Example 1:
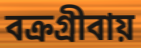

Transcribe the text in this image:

বক্রগ্রীবায়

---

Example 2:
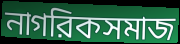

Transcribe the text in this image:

নাগরিকসমাজ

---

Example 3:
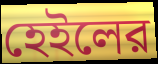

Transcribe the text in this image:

হেইলের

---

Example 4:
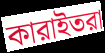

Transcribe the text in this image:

কারাইতরা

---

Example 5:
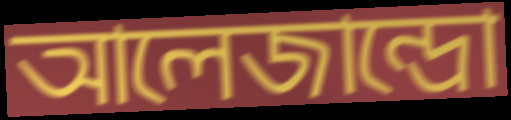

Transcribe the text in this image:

আলেজান্দ্রো